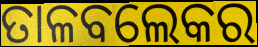
ତାଳବଲେକର